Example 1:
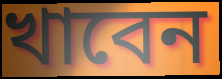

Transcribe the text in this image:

খাবেন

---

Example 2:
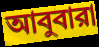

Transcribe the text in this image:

আবুবারা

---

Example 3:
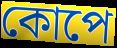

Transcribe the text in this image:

কোপে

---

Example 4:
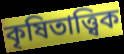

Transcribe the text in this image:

কৃষিতাত্ত্বিক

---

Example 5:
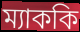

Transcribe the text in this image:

ম্যাককি